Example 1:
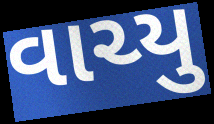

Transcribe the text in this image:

વાચ્યુ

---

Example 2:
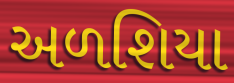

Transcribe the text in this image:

અળશિયા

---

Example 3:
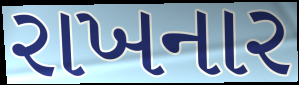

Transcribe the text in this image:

રાખનાર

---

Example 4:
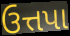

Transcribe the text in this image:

ઉત્તપા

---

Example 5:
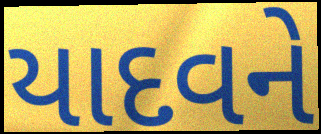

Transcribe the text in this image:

યાદવને